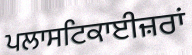
ਪਲਾਸਟਿਕਾਈਜ਼ਰਾਂ